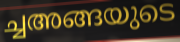
ച്ചഅങ്ങയുടെ